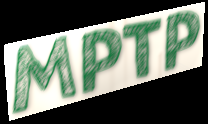
MPTP